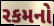
રકમનો